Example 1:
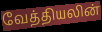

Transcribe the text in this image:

வேத்தியலின்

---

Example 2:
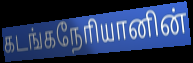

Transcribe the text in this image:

கடங்கநேரியானின்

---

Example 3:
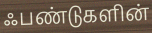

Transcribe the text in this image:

ஃபண்டுகளின்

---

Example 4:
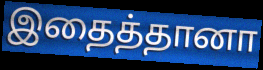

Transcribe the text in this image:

இதைத்தானா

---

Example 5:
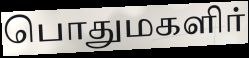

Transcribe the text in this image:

பொதுமகளிர்